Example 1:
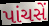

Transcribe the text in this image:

પાંચસેં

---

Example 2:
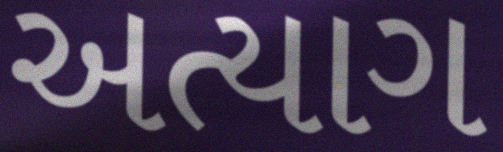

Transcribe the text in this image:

અત્યાગ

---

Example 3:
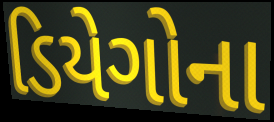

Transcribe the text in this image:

ડિયેગોના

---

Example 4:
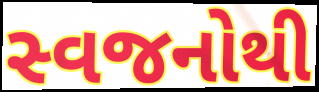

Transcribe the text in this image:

સ્વજનોથી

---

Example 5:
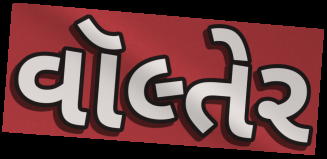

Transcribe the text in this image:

વૉલ્તેર